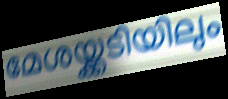
മേശയ്ക്കടിയിലും